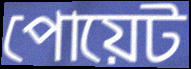
পোয়েট